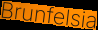
Brunfelsia